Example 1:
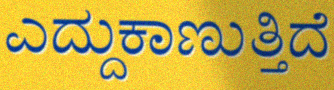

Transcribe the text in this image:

ಎದ್ದುಕಾಣುತ್ತಿದೆ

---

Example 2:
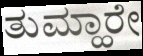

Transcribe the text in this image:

ತುಮ್ಹಾರೇ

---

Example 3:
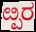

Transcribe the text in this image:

ೞ್ಪರ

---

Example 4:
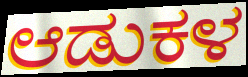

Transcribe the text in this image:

ಆಡುಕಳ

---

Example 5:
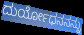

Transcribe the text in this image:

ದುರ್ಯೋಧನನನ್ನು